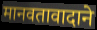
मानवतावादाने